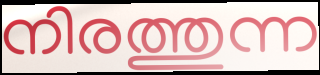
നിരത്തുന്ന